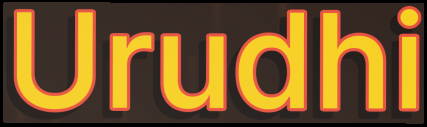
Urudhi